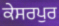
ਕੇਸਰਪੁਰ